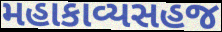
મહાકાવ્યસહજ